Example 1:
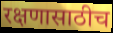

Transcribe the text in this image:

रक्षणासाठीच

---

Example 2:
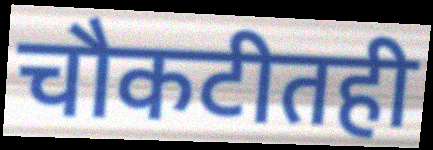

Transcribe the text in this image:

चौकटीतही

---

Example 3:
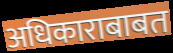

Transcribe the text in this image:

अधिकाराबाबत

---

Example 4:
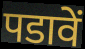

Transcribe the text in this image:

पडावें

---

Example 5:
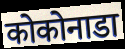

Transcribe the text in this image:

कोकोनाडा